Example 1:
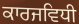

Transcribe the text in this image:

ਕਾਰਜਵਿਧੀ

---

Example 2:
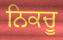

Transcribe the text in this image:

ਨਿਕਚੂ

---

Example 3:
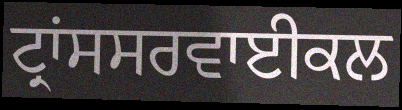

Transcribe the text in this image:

ਟ੍ਰਾਂਸਸਰਵਾਈਕਲ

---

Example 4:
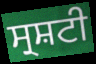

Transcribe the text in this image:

ਸ੍ਰਸ਼ਟੀ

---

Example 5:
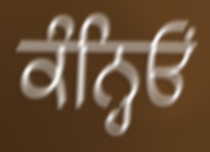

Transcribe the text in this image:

ਕੰਨ੍ਹਿਓਂ